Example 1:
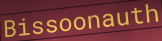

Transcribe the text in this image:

Bissoonauth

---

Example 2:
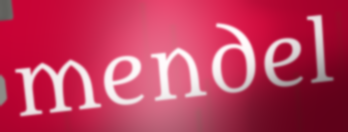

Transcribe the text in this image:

mendel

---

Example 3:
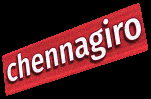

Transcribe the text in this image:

chennagiro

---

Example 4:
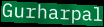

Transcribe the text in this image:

Gurharpal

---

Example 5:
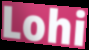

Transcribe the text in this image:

Lohi